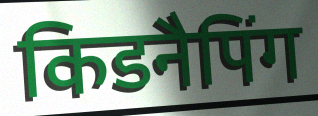
किडनैपिंग